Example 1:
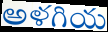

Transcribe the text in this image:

అళగియ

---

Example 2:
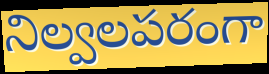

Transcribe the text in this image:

నిల్వలపరంగా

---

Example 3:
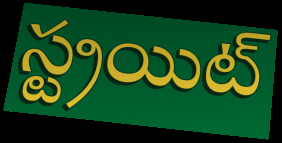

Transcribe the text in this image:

స్ట్రయిట్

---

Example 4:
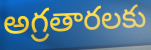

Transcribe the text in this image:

అగ్రతారలకు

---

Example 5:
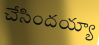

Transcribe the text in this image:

చేసిందయ్యా